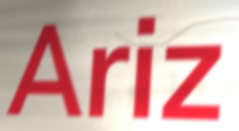
Ariz